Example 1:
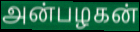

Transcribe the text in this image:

அன்பழகன்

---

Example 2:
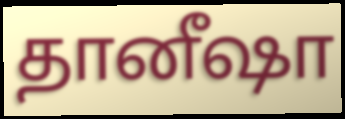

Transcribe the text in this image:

தானீஷா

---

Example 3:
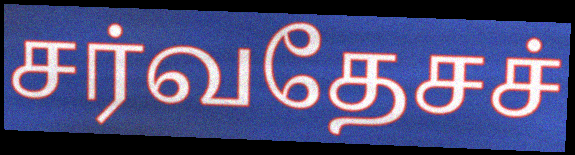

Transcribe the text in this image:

சர்வதேசச்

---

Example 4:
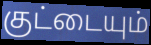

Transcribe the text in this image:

குட்டையும்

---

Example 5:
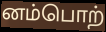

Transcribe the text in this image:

னம்பொற்